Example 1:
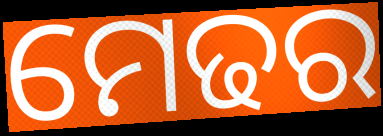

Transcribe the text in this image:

ମେଢର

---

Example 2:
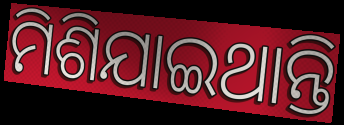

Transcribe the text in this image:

ମିଶିଯାଇଥାନ୍ତି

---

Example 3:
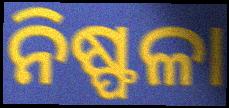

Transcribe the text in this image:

ନିଷ୍ଫଳା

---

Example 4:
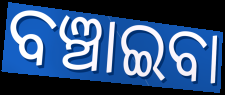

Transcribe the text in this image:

ବଞ୍ଚାଇବା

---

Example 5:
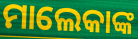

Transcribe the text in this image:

ମାଲେକାଙ୍କ